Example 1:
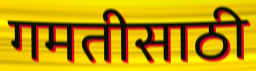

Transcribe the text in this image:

गमतीसाठी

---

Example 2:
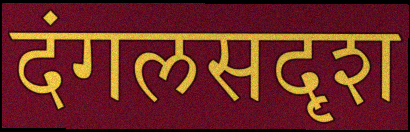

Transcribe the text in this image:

दंगलसदृश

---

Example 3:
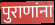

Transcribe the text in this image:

पुराणांना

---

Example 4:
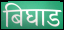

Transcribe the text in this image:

बिघाड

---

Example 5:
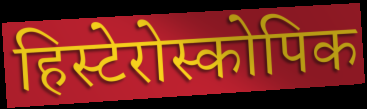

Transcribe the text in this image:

हिस्टेरोस्कोपिक